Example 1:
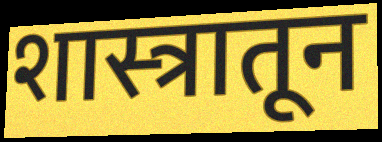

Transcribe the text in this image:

शास्त्रातून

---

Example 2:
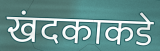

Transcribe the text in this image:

खंदकाकडे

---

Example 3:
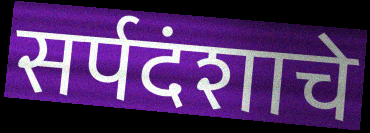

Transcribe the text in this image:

सर्पदंशाचे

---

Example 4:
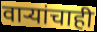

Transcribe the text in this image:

वाऱ्यांचाही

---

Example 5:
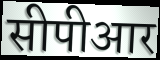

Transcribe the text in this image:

सीपीआर